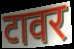
टावर